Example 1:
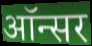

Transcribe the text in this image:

ऑन्सर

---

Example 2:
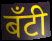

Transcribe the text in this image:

बँटी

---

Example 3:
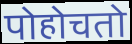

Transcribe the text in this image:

पोहोचतो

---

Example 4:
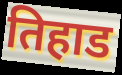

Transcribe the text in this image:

तिहाड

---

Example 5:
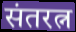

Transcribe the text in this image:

संतरत्न